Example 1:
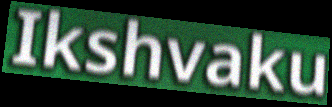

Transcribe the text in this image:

Ikshvaku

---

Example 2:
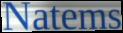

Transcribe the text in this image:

Natems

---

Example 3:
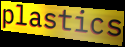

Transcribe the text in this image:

plastics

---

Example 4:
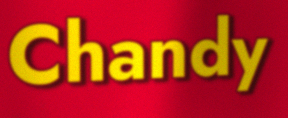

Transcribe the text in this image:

Chandy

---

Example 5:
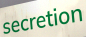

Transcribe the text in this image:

secretion